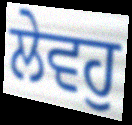
ਲੇਵਹੁ